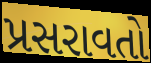
પ્રસરાવતો